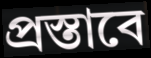
প্রস্তাবে